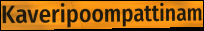
Kaveripoompattinam